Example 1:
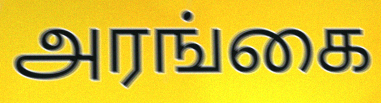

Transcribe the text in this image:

அரங்கை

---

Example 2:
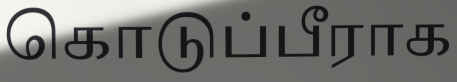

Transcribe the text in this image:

கொடுப்பீராக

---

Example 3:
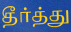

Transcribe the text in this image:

தீர்த்து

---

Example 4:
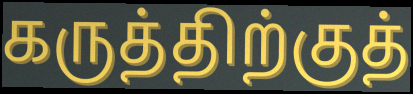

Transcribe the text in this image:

கருத்திற்குத்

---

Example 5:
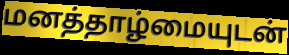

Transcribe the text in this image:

மனத்தாழ்மையுடன்